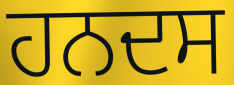
ਹਨਦਸ